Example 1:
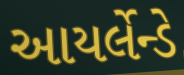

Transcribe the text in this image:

આયર્લેન્ડે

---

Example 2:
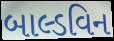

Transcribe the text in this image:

બાલ્ડવિન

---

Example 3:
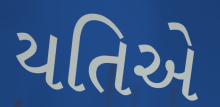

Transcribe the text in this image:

યતિએ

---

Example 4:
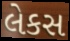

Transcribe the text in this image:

લેકસ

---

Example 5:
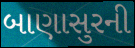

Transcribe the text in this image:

બાણાસુરની